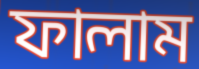
ফালাম